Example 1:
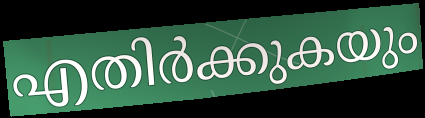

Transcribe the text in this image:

എതിർക്കുകയും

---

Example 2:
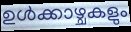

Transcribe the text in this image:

ഉൾക്കാഴ്ചകളും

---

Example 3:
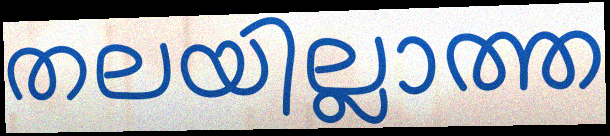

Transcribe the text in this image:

തലയില്ലാത്ത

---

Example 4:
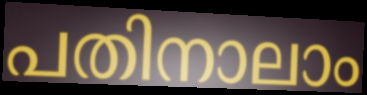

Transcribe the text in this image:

പതിനാലാം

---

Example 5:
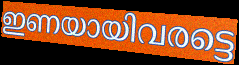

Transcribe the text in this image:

ഇണയായിവരട്ടെ